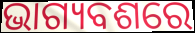
ଭାଗ୍ୟବଶରେ